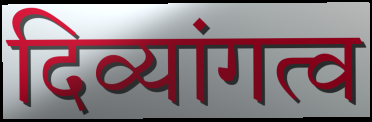
दिव्यांगत्व